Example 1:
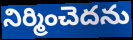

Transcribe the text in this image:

నిర్మించెదను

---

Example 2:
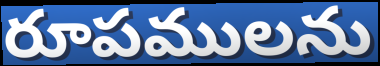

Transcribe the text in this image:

రూపములను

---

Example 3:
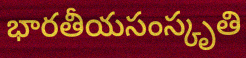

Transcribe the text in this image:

భారతీయసంస్కృతి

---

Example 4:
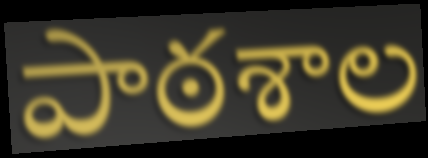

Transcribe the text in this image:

పాఠశాల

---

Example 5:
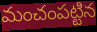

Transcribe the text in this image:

మంచంపట్టిన